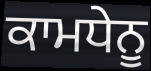
ਕਾਮਧੇਨੂ